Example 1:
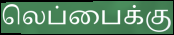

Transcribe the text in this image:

லெப்பைக்கு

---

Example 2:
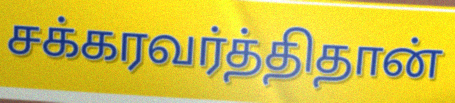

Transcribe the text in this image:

சக்கரவர்த்திதான்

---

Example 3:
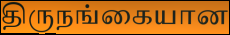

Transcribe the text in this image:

திருநங்கையான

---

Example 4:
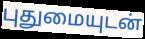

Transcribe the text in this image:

புதுமையுடன்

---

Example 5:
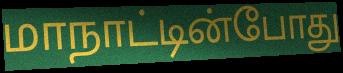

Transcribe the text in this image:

மாநாட்டின்போது